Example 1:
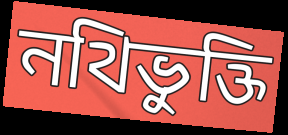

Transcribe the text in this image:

নথিভুক্তি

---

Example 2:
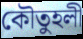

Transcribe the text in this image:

কৌতুহলী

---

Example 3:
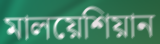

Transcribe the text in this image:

মালয়েশিয়ান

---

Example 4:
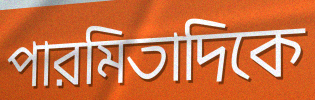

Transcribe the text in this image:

পারমিতাদিকে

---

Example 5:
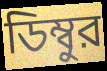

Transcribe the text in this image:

ডিম্বুর